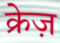
क्रेज़